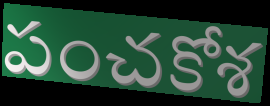
పంచకోశ